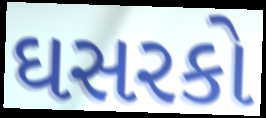
ઘસરકો